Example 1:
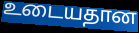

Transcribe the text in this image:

உடையதான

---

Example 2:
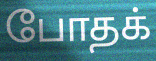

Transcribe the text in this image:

போதக்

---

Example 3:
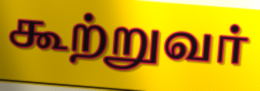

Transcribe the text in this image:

கூற்றுவர்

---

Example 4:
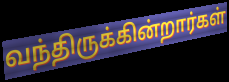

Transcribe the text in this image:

வந்திருக்கின்றார்கள்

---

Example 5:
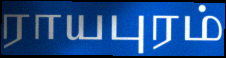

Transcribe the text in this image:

ராயபுரம்